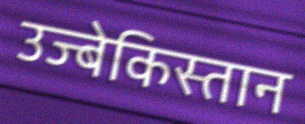
उज्बेकिस्तान